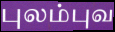
புலம்புவ